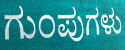
ಗುಂಪುಗಳು